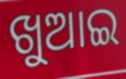
ଖୁଆଇ